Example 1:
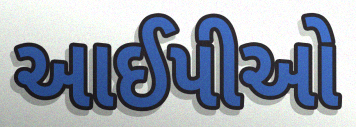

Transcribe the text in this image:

આઈપીઓ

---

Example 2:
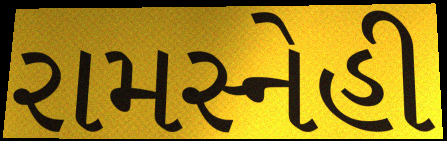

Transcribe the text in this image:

રામસ્નેહી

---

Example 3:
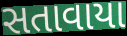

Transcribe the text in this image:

સતાવાયા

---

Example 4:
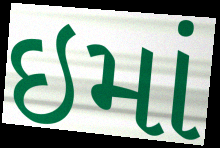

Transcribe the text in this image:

ઇમાં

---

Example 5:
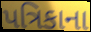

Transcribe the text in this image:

પત્રિકાના